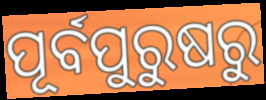
ପୂର୍ବପୁରୁଷରୁ